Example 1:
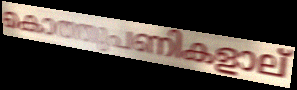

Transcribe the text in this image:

കൊത്തുപണികളാല്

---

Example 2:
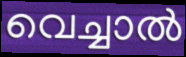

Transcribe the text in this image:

വെച്ചാൽ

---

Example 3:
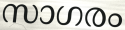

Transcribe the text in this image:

സാഗരം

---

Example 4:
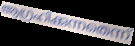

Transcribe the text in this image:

ആഗ്രഹിക്കുന്നതെന്ന്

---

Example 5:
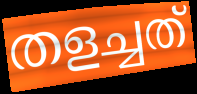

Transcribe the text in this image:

തളച്ചത്